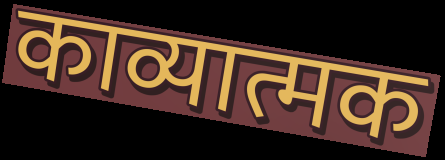
काव्यात्मक